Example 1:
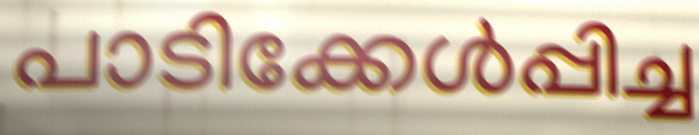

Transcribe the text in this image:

പാടിക്കേൾപ്പിച്ച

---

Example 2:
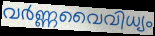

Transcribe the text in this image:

വർണ്ണവൈവിധ്യം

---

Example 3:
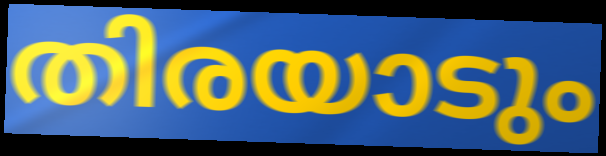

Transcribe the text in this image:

തിരയാടും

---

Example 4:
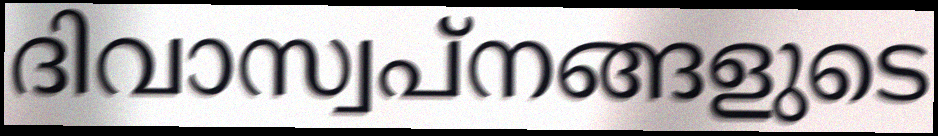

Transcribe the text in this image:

ദിവാസ്വപ്നങ്ങളുടെ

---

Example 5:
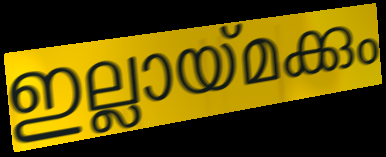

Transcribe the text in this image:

ഇല്ലായ്മക്കും